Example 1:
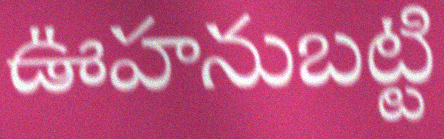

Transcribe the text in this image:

ఊహనుబట్టి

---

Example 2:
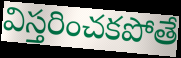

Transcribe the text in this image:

విస్తరించకపోతే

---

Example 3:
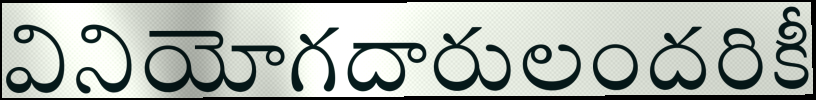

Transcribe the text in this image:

వినియోగదారులందరికీ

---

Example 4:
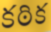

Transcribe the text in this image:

కఠిక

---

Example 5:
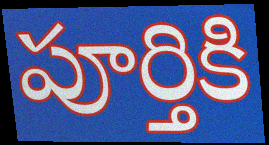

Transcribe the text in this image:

పూర్తికి